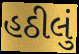
હઠીલું